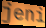
jeni